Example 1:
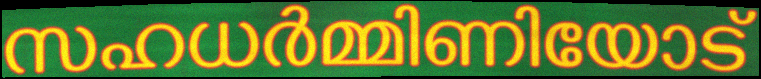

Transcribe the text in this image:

സഹധർമ്മിണിയോട്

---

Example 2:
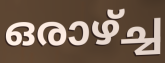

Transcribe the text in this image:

ഒരാഴ്ച്ച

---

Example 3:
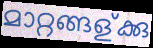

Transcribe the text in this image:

മാറ്റങ്ങള്ക്കു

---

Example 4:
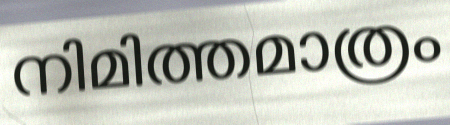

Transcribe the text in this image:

നിമിത്തമാത്രം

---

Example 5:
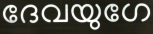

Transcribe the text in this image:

ദേവയുഗേ